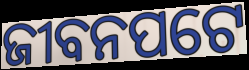
ଜୀବନପଟେ